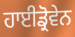
ਹਾਈਡ੍ਰੋਵੇਨ